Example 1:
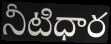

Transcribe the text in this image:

నీటిధార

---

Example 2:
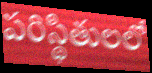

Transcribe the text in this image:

పరిస్థితులలో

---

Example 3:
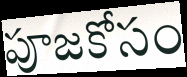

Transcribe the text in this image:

పూజకోసం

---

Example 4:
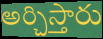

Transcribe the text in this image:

అర్చిస్తారు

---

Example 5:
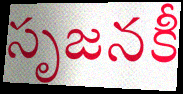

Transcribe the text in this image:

సృజనకీ